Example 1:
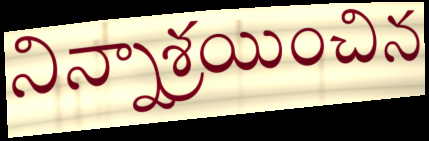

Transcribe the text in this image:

నిన్నాశ్రయించిన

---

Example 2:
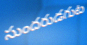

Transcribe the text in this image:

సుందరుడగుట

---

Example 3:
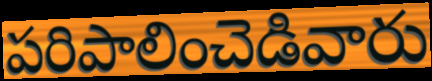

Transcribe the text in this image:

పరిపాలించెడివారు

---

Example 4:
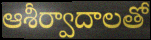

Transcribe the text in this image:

ఆశీర్వాదాలతో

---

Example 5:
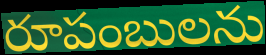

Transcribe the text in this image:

రూపంబులను